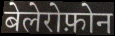
बेलेरोफ़ोन